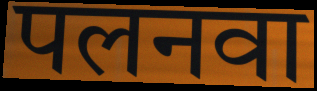
पलनवा